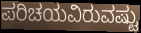
ಪರಿಚಯವಿರುವಷ್ಟು